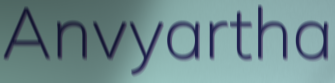
Anvyartha